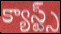
క్యాస్ట్స్